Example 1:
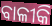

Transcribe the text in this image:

ବାଳୀକି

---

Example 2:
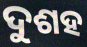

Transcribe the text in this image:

ଦୁଶହ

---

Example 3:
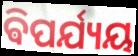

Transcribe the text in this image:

ଵିପର୍ଯ୍ୟୟ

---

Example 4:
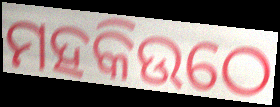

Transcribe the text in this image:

ମହକିଉଠେ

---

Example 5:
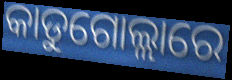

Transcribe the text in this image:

କାଡୁଗୋଲ୍ଲାରେ